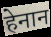
हेनान